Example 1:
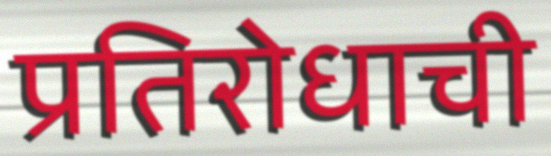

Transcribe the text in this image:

प्रतिरोधाची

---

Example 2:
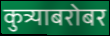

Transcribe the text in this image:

कुत्र्याबरोबर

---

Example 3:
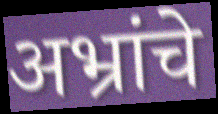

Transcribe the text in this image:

अभ्रांचे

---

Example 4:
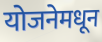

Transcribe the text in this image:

योजनेमधून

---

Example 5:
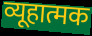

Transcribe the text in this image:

व्यूहात्मक